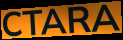
CTARA